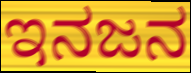
ಇನಜನ